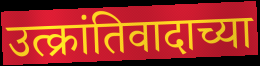
उत्क्रांतिवादाच्या